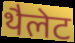
थैलेट